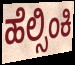
ಹೆಲ್ಸಿಂಕಿ